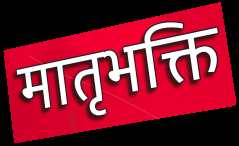
मातृभक्ति